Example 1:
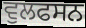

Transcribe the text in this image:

ਵੁਲਫਸਨ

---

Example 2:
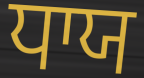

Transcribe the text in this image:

ਧਾਯ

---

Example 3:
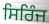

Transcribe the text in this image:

ਸਿਰਿੰਜ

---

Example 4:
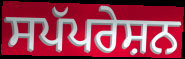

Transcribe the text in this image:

ਸਪੱਪਰੇਸ਼ਨ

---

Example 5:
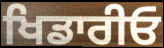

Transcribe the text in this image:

ਖਿਡਾਰੀਓ